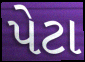
પેટા